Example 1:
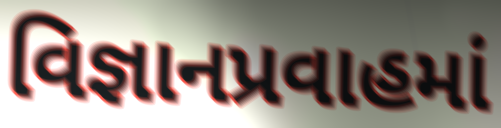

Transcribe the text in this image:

વિજ્ઞાનપ્રવાહમાં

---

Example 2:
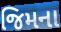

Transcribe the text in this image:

જિમના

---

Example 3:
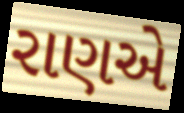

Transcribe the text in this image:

રાણએ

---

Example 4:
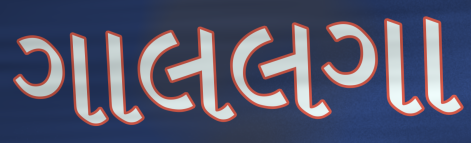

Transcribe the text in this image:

ગાલલગા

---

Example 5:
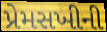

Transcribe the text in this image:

પ્રેમસખીની